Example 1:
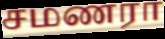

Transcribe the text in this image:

சமணரா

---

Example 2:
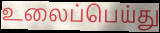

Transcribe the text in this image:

உலைப்பெய்து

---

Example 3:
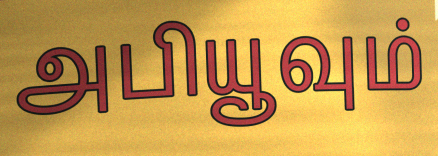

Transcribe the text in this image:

அபியூவும்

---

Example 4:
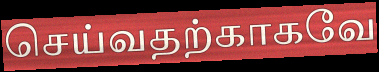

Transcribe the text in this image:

செய்வதற்காகவே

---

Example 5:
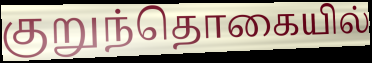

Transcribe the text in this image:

குறுந்தொகையில்